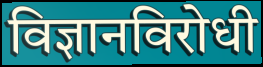
विज्ञानविरोधी